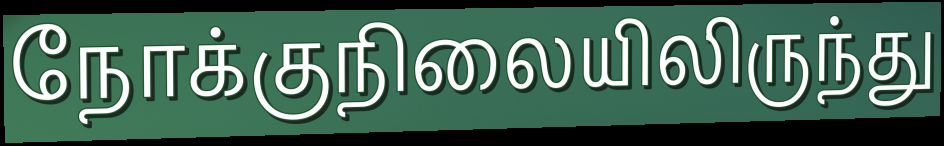
நோக்குநிலையிலிருந்து